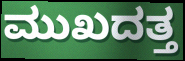
ಮುಖದತ್ತ